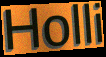
Holli